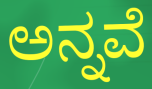
ಅನ್ನವೆ